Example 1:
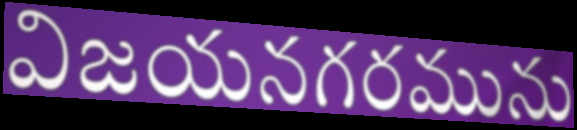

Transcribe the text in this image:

విజయనగరమును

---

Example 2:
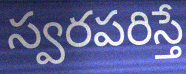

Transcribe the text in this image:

స్వరపరిస్తే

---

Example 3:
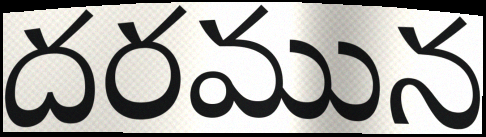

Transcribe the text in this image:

దరమున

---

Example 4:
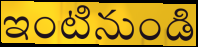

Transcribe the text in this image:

ఇంటినుండి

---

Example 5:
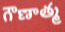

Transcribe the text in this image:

గౌణాత్మ